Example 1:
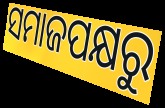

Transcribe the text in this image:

ସମାଜପକ୍ଷରୁ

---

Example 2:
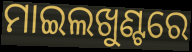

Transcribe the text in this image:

ମାଇଲଖୁଣ୍ଟରେ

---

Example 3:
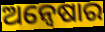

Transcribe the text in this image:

ଅନ୍ବେଷାର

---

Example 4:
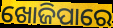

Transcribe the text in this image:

ଖୋଜିପାରେ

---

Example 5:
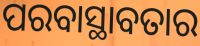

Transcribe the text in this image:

ପରବାସ୍ଥାବତାର